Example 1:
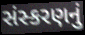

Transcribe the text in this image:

સંસ્કરણનું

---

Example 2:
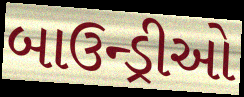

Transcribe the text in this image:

બાઉન્ડ્રીઓ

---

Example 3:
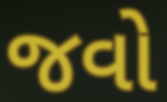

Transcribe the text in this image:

જવો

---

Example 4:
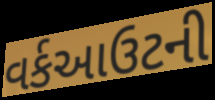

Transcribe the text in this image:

વર્કઆઉટની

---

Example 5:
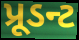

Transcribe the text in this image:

પ્રૂડન્ટ